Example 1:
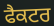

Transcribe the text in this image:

ਫੈਕਟਰ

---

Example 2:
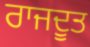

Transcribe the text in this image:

ਰਾਜਦੂਤ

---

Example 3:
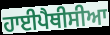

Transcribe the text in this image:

ਹਾਈਪੈਥੀਸੀਆ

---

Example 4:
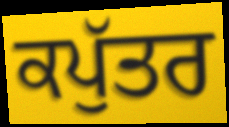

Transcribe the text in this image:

ਕਪੁੱਤਰ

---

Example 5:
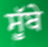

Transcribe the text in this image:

ਸੂੱਬੇ